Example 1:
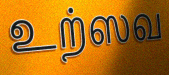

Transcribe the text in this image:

உற்ஸவ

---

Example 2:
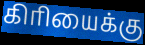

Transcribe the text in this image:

கிரியைக்கு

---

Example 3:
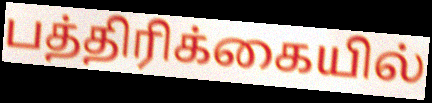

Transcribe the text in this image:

பத்திரிக்கையில்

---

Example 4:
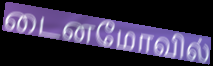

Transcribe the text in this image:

டைனமோவில்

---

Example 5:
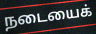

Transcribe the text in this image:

நடையைக்